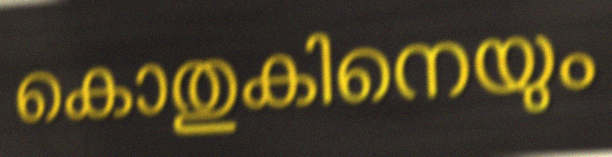
കൊതുകിനെയും